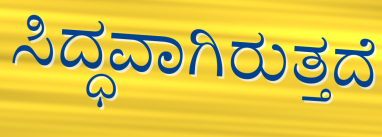
ಸಿದ್ಧವಾಗಿರುತ್ತದೆ